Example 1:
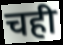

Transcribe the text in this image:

चही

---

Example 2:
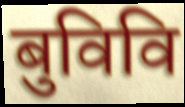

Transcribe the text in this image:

बुविवि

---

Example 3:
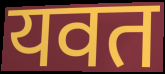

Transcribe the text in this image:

यवत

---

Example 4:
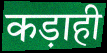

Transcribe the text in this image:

कड़ाही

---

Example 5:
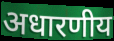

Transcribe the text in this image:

अधारणीय